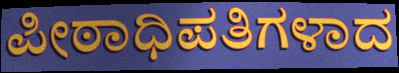
ಪೀಠಾಧಿಪತಿಗಳಾದ